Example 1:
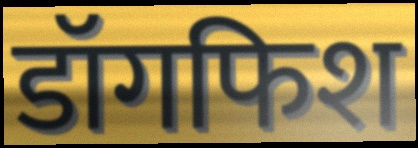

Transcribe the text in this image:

डॉगफिश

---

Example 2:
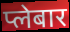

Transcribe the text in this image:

प्लेबार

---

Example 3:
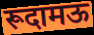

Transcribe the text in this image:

रूदामऊ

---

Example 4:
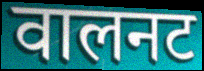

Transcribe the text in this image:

वालनट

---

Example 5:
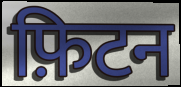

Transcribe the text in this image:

फ़िटन